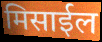
मिसाईल